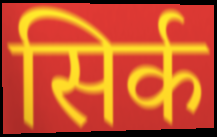
सिर्क